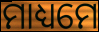
ମାଧ୍ୟମେ